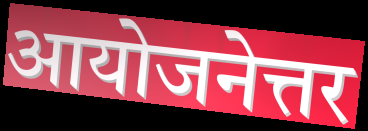
आयोजनेत्तर